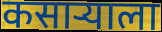
कसाऱ्याला